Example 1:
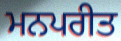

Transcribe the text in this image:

ਮਨਪਰੀਤ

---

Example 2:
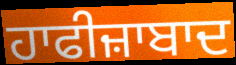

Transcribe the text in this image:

ਹਾਫੀਜ਼ਾਬਾਦ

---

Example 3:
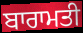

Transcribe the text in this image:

ਬਾਰਾਮਤੀ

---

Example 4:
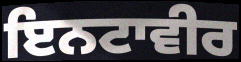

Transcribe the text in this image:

ਇਨਟਾਵੀਰ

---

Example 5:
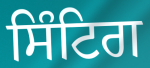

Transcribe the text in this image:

ਸਿੰਟਿਗ